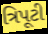
ત્રિપૂટી